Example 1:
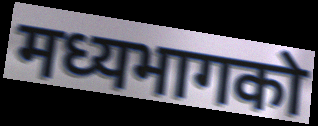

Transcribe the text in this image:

मध्यभागको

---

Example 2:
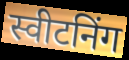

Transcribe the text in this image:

स्वीटनिंग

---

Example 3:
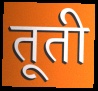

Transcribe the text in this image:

तूती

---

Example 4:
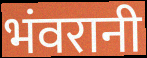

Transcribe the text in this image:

भंवरानी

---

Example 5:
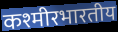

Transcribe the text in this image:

कश्मीरभारतीय